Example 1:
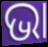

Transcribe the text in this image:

ଭା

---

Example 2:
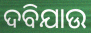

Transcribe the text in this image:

ଦବିଯାଉ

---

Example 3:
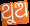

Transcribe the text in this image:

ଥୁଅ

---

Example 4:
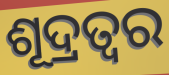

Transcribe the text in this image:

ଶୂଦ୍ରତ୍ଵର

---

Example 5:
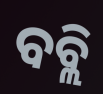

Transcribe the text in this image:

ବବ୍ଲି